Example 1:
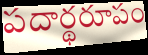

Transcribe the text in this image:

పదార్థరూపం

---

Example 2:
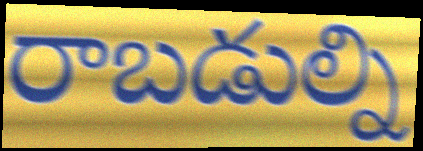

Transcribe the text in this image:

రాబడుల్ని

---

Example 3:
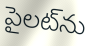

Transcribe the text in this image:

పైలట్‌ను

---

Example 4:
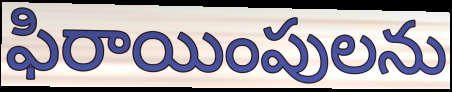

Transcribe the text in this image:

ఫిరాయింపులను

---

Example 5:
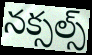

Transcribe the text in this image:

నక్సల్స్